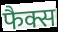
फैक्स